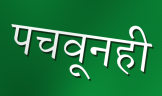
पचवूनही